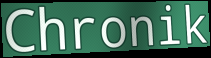
Chronik